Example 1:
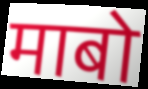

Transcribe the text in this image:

माबो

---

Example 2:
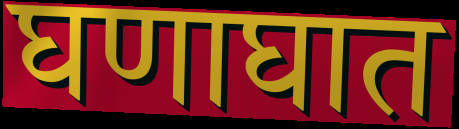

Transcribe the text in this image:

घणाघात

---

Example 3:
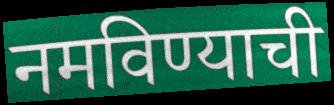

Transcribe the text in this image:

नमविण्याची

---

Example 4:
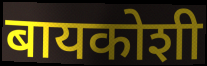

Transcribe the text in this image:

बायकोशी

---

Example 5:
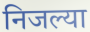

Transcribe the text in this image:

निजल्या